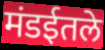
मंडईतले